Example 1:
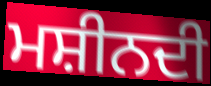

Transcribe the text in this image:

ਮਸ਼ੀਨਦੀ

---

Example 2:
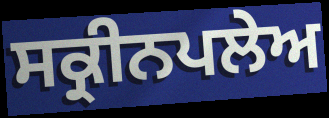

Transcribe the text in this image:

ਸਕ੍ਰੀਨਪਲੇਅ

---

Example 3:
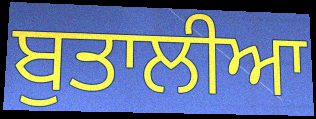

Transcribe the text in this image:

ਬੁਤਾਲੀਆ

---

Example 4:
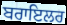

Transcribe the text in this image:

ਬਰਾਇਲਰ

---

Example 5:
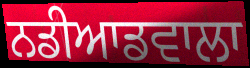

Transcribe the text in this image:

ਨਡੀਆਡਵਾਲਾ